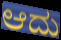
ಆದು